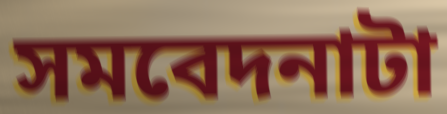
সমবেদনাটা